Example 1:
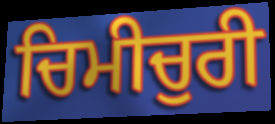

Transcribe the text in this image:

ਚਿਮੀਚੁਰੀ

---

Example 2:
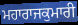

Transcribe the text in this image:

ਮਹਾਰਾਜਕੁਮਾਰੀ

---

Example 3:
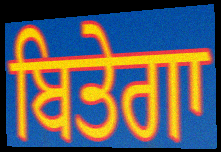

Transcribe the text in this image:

ਬਿਤੇਗਾ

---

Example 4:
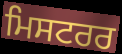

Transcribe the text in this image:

ਮਿਸਟਰਰ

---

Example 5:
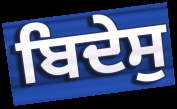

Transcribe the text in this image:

ਬਿਦੇਸੁ